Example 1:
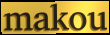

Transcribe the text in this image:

makou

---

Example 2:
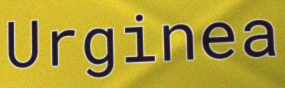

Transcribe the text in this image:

Urginea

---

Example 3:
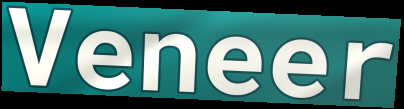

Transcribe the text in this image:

Veneer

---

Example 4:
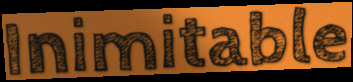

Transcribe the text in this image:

Inimitable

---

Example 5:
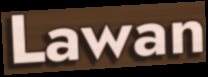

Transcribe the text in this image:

Lawan